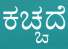
ಕಚ್ಚದೆ